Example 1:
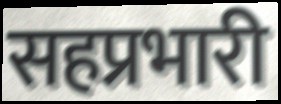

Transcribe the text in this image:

सहप्रभारी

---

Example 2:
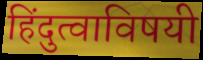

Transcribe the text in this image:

हिंदुत्वाविषयी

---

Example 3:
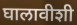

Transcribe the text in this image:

घालावीशी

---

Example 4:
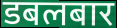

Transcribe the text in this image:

डबलबार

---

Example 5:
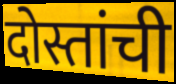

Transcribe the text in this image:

दोस्तांची